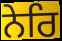
ਨੇਰਿ